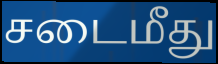
சடைமீது